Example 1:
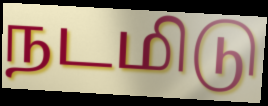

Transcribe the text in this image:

நடமிடு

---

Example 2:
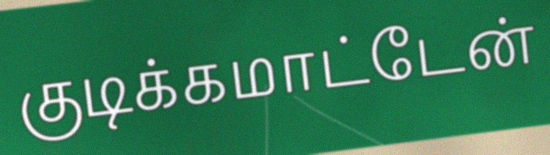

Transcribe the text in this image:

குடிக்கமாட்டேன்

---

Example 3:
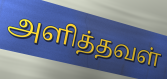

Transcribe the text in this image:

அளித்தவள்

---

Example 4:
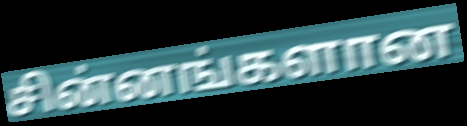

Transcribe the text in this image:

சின்னங்களான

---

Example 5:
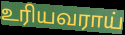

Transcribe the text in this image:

உரியவராய்